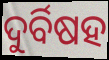
ଦୁର୍ବିଷହ